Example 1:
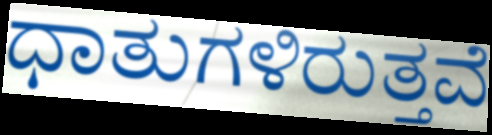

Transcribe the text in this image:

ಧಾತುಗಳಿರುತ್ತವೆ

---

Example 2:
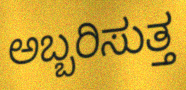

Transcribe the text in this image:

ಅಬ್ಬರಿಸುತ್ತ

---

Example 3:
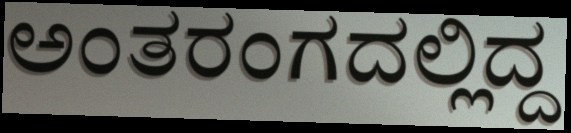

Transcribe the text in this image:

ಅಂತರಂಗದಲ್ಲಿದ್ದ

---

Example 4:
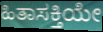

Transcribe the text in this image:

ಹಿತಾಸಕ್ತಿಯೇ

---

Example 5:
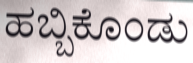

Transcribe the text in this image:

ಹಬ್ಬಿಕೊಂಡು